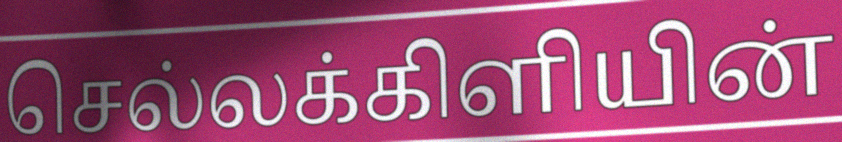
செல்லக்கிளியின்